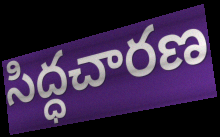
సిద్ధచారణ